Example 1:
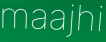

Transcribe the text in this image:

maajhi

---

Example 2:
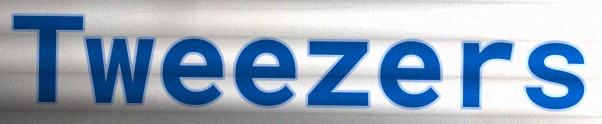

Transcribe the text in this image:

Tweezers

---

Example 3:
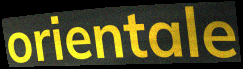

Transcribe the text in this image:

orientale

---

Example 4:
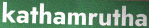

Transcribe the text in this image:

kathamrutha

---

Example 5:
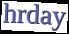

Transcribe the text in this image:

hrday